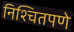
निश्चितपणे